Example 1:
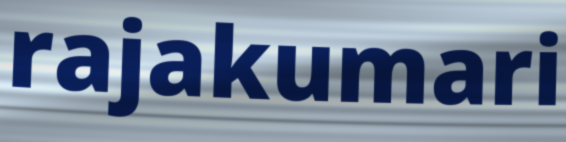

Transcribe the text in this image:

rajakumari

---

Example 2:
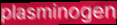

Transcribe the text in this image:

plasminogen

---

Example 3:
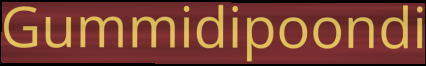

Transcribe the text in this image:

Gummidipoondi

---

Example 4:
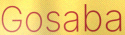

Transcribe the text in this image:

Gosaba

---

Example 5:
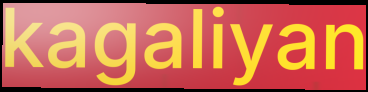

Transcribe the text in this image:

kagaliyan